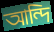
আন্দি